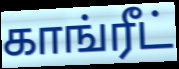
காங்ரீட்